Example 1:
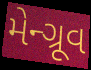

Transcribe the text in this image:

મેન્ગ્રૂવ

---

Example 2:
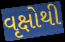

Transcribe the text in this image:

વૃક્ષોથી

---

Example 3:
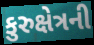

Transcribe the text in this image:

કુરુક્ષેત્રની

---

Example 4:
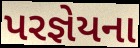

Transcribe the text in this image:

પરજ્ઞેયના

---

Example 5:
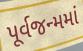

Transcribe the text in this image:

પૂર્વજન્મમાં